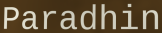
Paradhin